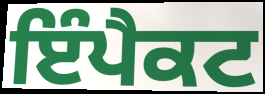
ਇੰਪੈਕਟ